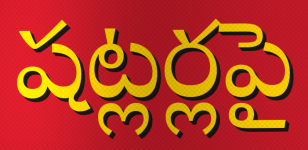
షట్లర్లపై